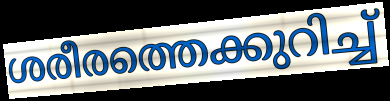
ശരീരത്തെക്കുറിച്ച്